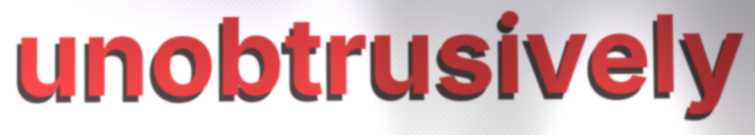
unobtrusively